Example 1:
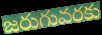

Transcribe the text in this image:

జరుగువరకు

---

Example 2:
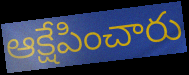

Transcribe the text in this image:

ఆక్షేపించారు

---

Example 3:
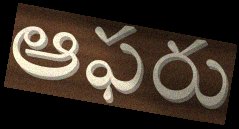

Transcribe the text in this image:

ఆఫరు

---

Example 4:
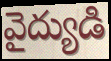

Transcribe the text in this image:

వైద్యుడి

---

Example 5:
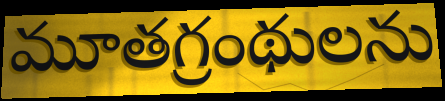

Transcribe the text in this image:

మూతగ్రంథులను